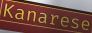
Kanarese